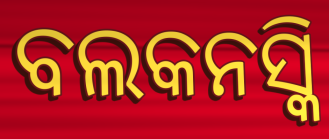
ବଲକନସ୍କି